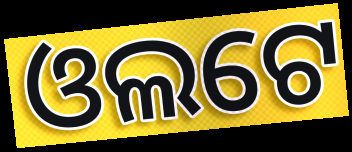
ଓଲଟେ